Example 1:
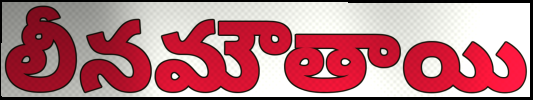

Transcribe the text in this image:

లీనమౌతాయి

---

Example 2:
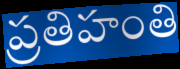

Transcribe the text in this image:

ప్రతిహంతి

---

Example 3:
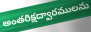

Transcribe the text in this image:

అంతరిక్షద్వారములను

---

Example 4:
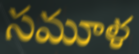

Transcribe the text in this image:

సమూళ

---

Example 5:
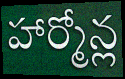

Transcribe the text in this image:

హార్మోన్ల